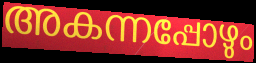
അകന്നപ്പോഴും